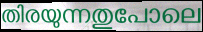
തിരയുന്നതുപോലെ